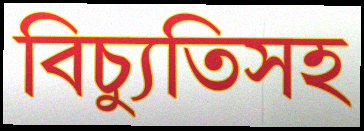
বিচ্যুতিসহ